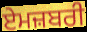
ਏਮਜ਼ਬਰੀ